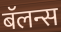
बॅलन्स